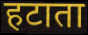
हटाता